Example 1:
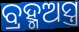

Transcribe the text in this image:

ବ୍ରହ୍ମଅସ୍ତ୍ର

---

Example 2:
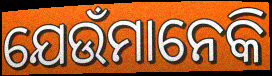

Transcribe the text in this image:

ଯେଉଁମାନେକି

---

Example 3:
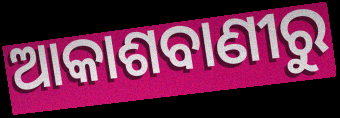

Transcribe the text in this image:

ଆକାଶବାଣୀରୁ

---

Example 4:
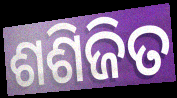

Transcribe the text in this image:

ଶଶିଜିତ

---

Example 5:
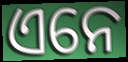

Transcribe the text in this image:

ଏନେ